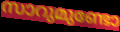
സാറുമുണ്ടോ